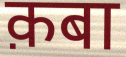
क़बा